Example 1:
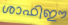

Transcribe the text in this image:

ശാഫിഈ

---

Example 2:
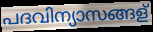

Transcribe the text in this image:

പദവിന്യാസങ്ങള്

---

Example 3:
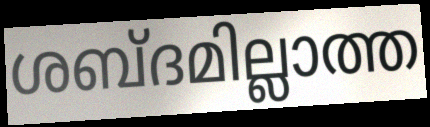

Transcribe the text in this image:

ശബ്ദമില്ലാത്ത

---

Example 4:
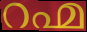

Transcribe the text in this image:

റഹ്മ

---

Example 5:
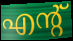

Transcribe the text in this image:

എന്റ്